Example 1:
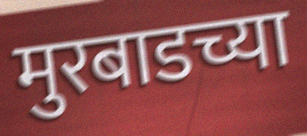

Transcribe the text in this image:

मुरबाडच्या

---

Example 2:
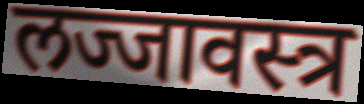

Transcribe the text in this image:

लज्जावस्त्र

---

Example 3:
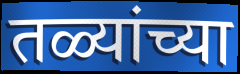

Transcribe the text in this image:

तळ्यांच्या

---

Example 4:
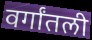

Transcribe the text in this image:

वर्गांतली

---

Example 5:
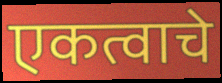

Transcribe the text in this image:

एकत्वाचे